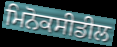
ਮਿਨੋਕਸੀਡੀਲ